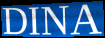
DINA